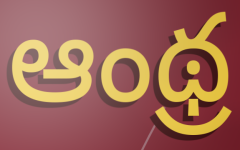
ఆంథ్ర